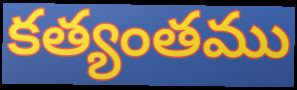
కత్యంతము